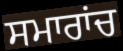
ਸਮਾਰਾਂਚ